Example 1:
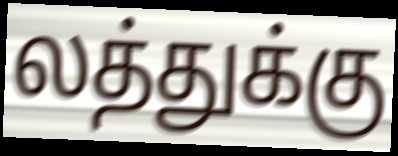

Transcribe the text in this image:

லத்துக்கு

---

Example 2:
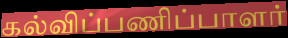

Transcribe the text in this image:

கல்விப்பணிப்பாளர்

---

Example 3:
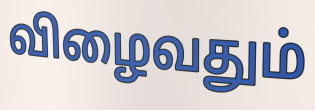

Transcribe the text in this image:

விழைவதும்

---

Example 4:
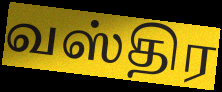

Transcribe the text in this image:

வஸ்திர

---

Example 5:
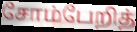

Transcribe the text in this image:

சோம்பேறித்